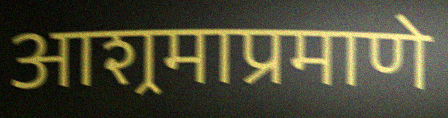
आश्रमाप्रमाणे